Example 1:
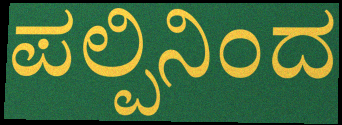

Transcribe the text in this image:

ಪಲ್ಪಿನಿಂದ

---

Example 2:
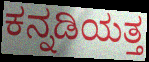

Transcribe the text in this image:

ಕನ್ನಡಿಯತ್ತ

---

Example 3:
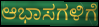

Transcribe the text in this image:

ಆಭಾಸಗಳಿಗೆ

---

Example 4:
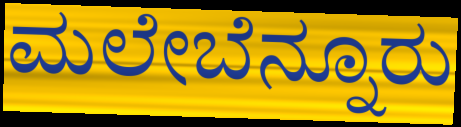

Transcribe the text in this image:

ಮಲೇಬೆನ್ನೂರು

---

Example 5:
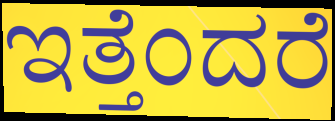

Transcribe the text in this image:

ಇತ್ತೆಂದರೆ